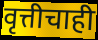
वृत्तीचाही